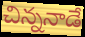
చిన్ననాడే